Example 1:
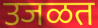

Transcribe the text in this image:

उजळत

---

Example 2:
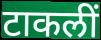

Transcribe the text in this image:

टाकलीं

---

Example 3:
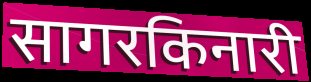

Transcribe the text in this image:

सागरकिनारी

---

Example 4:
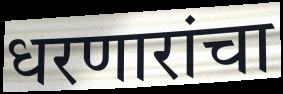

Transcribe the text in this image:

धरणारांचा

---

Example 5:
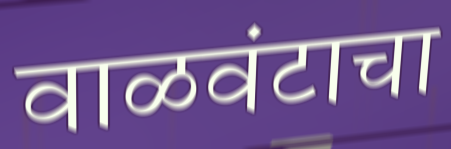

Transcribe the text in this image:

वाळवंटाचा